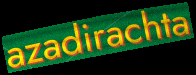
azadirachta